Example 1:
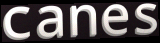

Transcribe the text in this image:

canes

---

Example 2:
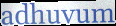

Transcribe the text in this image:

adhuvum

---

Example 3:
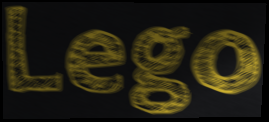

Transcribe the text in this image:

Lego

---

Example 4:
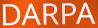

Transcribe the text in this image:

DARPA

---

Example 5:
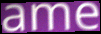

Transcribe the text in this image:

ame